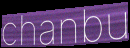
chanbu